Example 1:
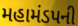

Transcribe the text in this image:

મહામંડપની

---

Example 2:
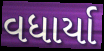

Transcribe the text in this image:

વધાર્યા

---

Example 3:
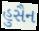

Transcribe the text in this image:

હુસૈન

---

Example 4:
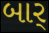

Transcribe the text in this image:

બાર્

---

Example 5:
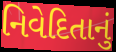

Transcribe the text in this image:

નિવેદિતાનું